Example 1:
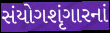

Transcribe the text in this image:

સંયોગશૃંગારનાં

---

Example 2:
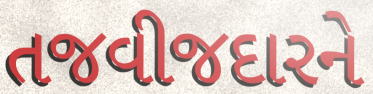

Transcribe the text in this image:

તજવીજદારને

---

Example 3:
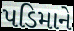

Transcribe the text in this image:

પડિમાને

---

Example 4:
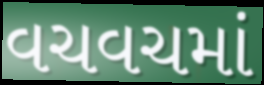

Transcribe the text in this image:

વચવચમાં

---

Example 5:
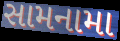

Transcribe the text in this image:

સામનામા